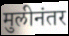
मुलीनंतर